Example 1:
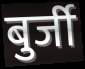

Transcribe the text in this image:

बुर्जी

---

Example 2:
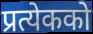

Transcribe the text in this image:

प्रत्येकको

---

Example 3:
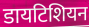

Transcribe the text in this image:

डायटिशियन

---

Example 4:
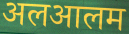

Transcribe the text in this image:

अलआलम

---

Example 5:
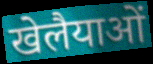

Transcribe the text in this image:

खेलैयाओं